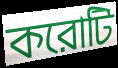
করোটি